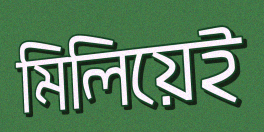
মিলিয়েই